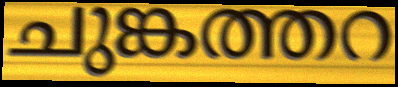
ചുങ്കത്തറ